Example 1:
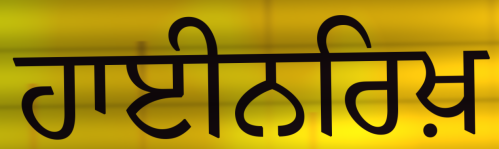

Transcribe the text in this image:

ਹਾਈਨਰਿਖ਼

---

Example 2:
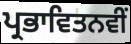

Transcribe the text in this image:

ਪ੍ਰਭਾਵਿਤਨਵੀਂ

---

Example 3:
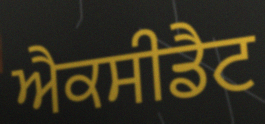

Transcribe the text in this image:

ਐਕਸੀਡੈਟ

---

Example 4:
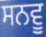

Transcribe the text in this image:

ਸਨਵੂ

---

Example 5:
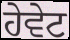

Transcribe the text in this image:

ਹੇਵੇਟ